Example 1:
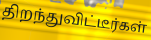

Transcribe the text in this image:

திறந்துவிட்டீர்கள்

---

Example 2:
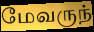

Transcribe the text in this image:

மேவருந்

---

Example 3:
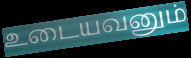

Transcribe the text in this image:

உடையவனும்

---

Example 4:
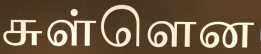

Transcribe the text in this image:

சுள்ளென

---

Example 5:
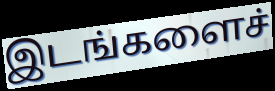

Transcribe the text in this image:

இடங்களைச்